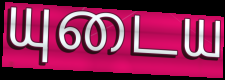
யுடைய